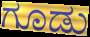
ಗೂಡು